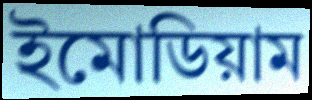
ইমোডিয়াম